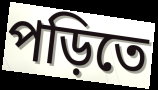
পড়িতে